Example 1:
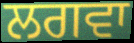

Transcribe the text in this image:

ਲਗਵਾ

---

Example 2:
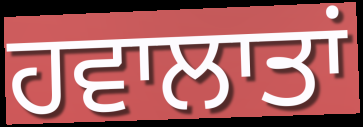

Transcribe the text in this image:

ਹਵਾਲਾਤਾਂ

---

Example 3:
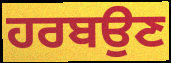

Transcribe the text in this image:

ਹਰਬਉਣ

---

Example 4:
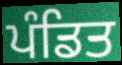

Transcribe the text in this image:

ਪੰਡਿਤ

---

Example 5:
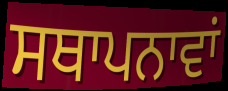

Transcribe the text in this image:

ਸਥਾਪਨਾਵਾਂ